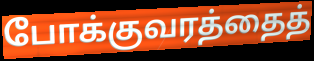
போக்குவரத்தைத்